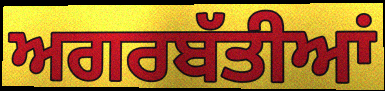
ਅਗਰਬੱਤੀਆਂ